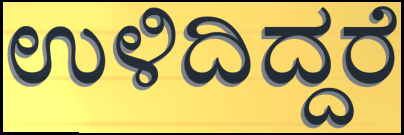
ಉಳಿದಿದ್ದರೆ